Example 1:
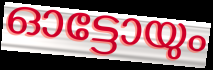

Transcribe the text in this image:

ഓട്ടോയും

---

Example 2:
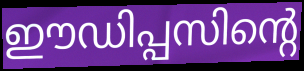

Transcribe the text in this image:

ഈഡിപ്പസിന്റെ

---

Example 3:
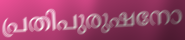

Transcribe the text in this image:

പ്രതിപുരുഷനോ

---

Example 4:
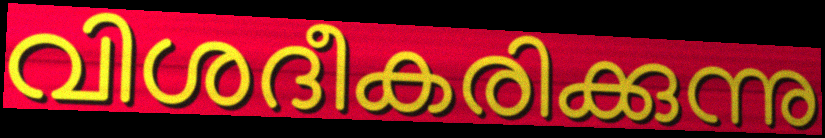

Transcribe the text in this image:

വിശദീകരിക്കുന്നു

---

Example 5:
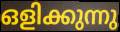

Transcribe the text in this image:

ഒളിക്കുന്നു